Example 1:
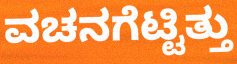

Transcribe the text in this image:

ವಚನಗೆಟ್ಟಿತ್ತು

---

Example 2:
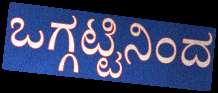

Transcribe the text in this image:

ಒಗ್ಗಟ್ಟಿನಿಂದ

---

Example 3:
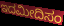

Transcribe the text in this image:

ಇದಮೀದಿಸಂ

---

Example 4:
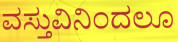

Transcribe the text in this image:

ವಸ್ತುವಿನಿಂದಲೂ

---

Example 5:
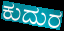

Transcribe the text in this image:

ಕುದುರ